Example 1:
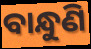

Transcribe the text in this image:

ବାନ୍ଧୁଣି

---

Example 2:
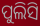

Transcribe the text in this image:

ପୁଲିସି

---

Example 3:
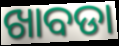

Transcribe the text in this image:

ଖାବଡା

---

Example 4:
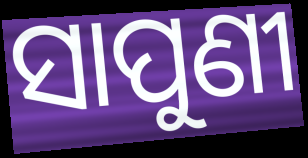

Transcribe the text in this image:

ସାପୁଣୀ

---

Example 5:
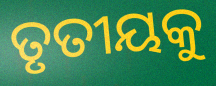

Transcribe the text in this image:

ତୃତୀୟକୁ